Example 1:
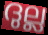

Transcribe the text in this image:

ദുല്ല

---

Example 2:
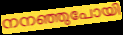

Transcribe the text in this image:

നനഞ്ഞുപോയി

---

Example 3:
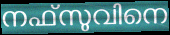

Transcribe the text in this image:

നഫ്സുവിനെ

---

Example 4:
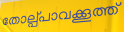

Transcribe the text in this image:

തോല്പ്പാവക്കൂത്ത്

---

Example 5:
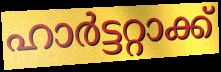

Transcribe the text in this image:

ഹാർട്ടറ്റാക്ക്